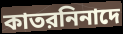
কাতরনিনাদে